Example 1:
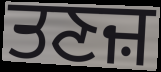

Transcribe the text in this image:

ਤਣਜ਼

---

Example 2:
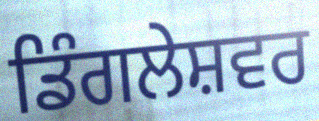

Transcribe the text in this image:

ਡਿੰਗਲੇਸ਼ਵਰ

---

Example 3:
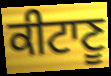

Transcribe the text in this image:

ਕੀਟਾਣੂ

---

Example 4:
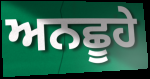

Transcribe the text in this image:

ਅਨਛੂਹੇ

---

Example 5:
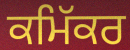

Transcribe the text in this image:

ਕਮਿੱਕਰ